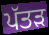
ਪੱਤਡ਼